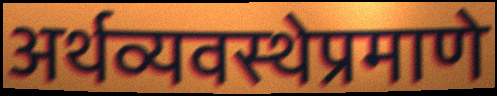
अर्थव्यवस्थेप्रमाणे